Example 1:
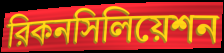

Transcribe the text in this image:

রিকনসিলিয়েশন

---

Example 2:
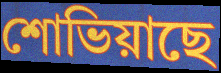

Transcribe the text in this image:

শোভিয়াছে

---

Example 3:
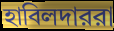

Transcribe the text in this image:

হাবিলদাররা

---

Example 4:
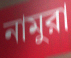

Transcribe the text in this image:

নামুরা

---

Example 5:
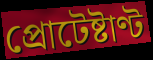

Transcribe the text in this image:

প্রোটেষ্টাণ্ট